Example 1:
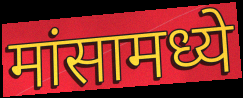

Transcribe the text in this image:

मांसामध्ये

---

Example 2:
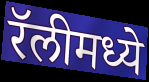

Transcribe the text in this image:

रॅलीमध्ये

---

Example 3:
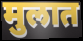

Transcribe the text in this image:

मुलात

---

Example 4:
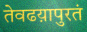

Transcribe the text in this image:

तेवढय़ापुरतं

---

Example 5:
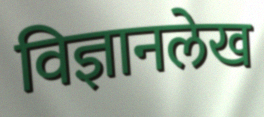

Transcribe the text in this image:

विज्ञानलेख